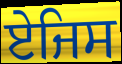
ਏਜਿਸ